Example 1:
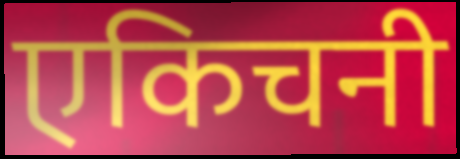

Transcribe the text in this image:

एकिचनी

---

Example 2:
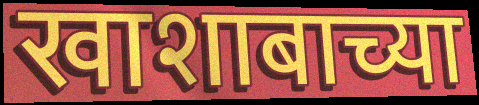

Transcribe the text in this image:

खाशाबाच्या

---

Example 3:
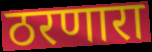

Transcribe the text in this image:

ठरणारा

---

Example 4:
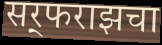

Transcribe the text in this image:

सर्फराझचा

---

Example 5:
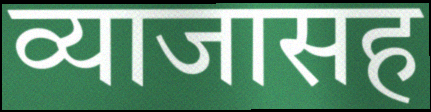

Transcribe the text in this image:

व्याजासह